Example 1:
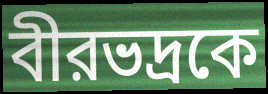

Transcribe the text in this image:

বীরভদ্রকে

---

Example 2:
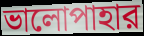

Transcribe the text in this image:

ভালোপাহার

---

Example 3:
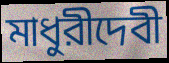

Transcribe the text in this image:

মাধুরীদেবী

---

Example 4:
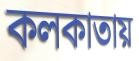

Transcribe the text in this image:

কলকাতায়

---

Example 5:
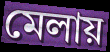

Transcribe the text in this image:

মেলায়